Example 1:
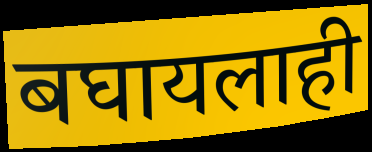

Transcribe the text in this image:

बघायलाही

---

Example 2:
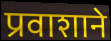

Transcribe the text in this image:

प्रवाशाने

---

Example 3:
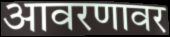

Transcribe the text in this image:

आवरणावर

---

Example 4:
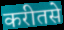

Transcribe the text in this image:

करीतसे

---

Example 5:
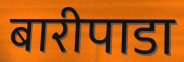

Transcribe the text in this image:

बारीपाडा